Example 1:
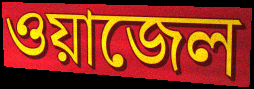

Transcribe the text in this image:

ওয়াজেল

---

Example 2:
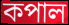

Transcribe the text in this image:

কপাল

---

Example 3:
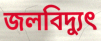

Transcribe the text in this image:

জলবিদ্যুৎ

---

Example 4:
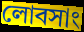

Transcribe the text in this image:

লোবসাং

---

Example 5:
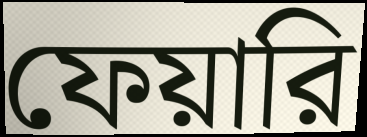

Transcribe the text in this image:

ফেয়ারি